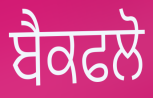
ਬੈਕਫਲੋ